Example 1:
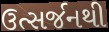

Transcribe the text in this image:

ઉત્સર્જનથી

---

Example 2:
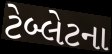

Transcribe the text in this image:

ટેબ્લેટના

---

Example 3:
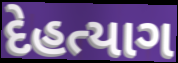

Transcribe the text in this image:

દેહત્યાગ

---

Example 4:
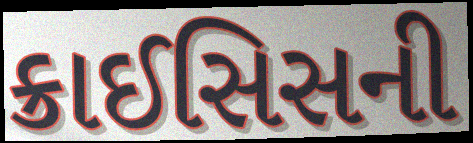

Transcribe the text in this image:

ક્રાઈસિસની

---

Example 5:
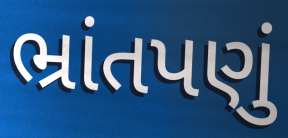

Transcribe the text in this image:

ભ્રાંતપણું